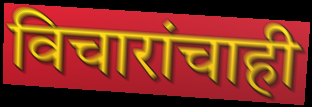
विचारांचाही